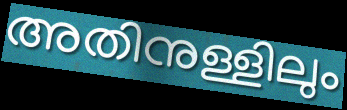
അതിനുള്ളിലും